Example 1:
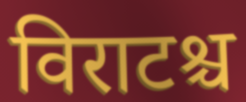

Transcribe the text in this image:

विराटश्च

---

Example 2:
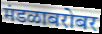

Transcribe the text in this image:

मंडळाबरोबर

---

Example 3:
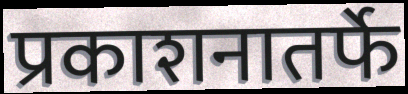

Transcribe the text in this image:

प्रकाशनातर्फे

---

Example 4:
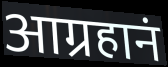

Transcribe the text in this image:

आग्रहानं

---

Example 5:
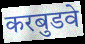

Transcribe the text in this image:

करबुडवे